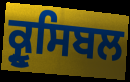
ਕ੍ਰੂਸਿਬਲ